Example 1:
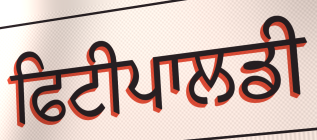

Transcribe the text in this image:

ਫਿਟੀਪਾਲਡੀ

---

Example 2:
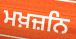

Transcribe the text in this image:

ਮਖ਼ਜ਼ਨਿ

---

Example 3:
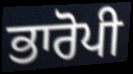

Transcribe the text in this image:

ਭਾਰੋਪੀ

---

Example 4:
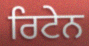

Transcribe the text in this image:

ਰਿਟੇਨ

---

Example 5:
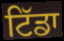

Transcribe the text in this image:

ਟਿੱਡਾ